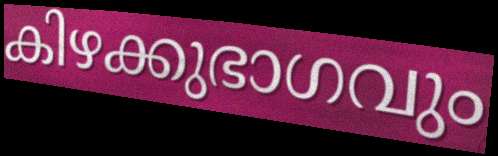
കിഴക്കുഭാഗവും